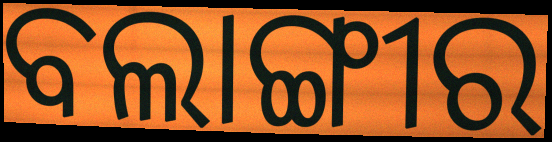
ବଲାଙ୍ଗୀର